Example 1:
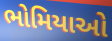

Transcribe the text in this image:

ભોમિયાઓ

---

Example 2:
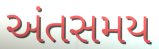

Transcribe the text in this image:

અંતસમય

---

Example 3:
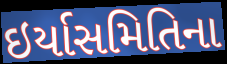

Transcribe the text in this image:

ઇર્યાસમિતિના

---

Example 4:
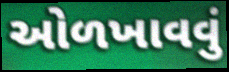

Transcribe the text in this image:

ઓળખાવવું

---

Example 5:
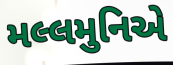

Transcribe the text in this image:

મલ્લમુનિએ